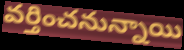
వర్తించనున్నాయి